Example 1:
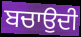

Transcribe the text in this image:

ਬਚਾਉਦੀ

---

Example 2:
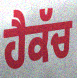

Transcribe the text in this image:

ਹੈਕੱਚ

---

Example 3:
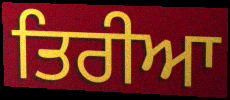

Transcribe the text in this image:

ਤਿਰੀਆ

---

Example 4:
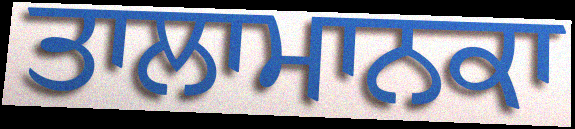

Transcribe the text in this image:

ਤਾਲਾਮਾਨਕਾ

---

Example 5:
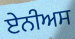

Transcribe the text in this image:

ਏਨੀਅਸ